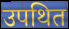
उपथित